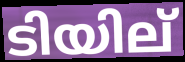
ടിയില്